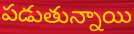
పడుతున్నాయి